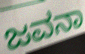
ಜವನಾ